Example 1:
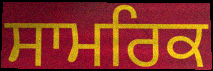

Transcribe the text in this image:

ਸਾਮਰਿਕ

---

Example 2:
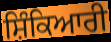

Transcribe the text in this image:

ਸ਼ਿੰਕਿਆਰੀ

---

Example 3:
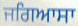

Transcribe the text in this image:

ਜਗਿਆਸਾ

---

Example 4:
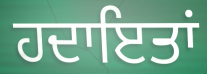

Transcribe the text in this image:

ਹਦਾਇਤਾਂ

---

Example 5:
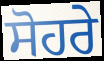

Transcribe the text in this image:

ਸੋਹਰੇ